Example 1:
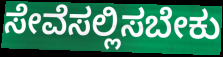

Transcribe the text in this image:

ಸೇವೆಸಲ್ಲಿಸಬೇಕು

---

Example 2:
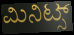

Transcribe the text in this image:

ಮಿನಿಟ್ಸ್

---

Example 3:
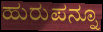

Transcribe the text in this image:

ಹುರುಪನ್ನೂ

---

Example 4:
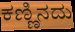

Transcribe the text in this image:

ಕಣ್ಣಿನದು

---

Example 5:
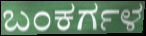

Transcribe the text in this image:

ಬಂಕರ್ಗಳ